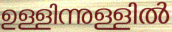
ഉള്ളിന്നുള്ളിൽ